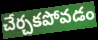
చేర్చకపోవడం